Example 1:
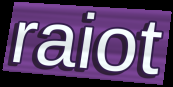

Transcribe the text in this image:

raiot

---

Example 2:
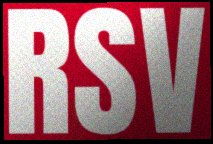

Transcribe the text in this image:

RSV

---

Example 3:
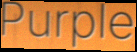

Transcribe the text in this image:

Purple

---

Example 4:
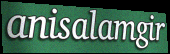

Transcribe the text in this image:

anisalamgir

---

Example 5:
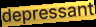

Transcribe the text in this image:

depressant